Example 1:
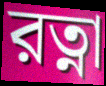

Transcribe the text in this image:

রত্না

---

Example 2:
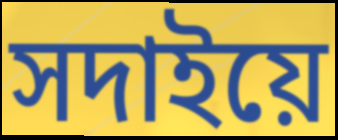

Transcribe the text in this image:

সদাইয়ে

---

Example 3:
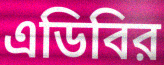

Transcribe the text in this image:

এডিবির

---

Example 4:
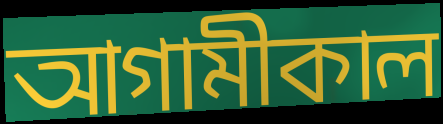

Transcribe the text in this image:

আগামীকাল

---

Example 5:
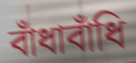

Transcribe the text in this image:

বাঁধাবাঁধি